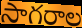
సాగరాల